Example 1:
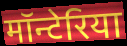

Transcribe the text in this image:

मॉन्टेरिया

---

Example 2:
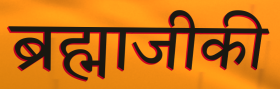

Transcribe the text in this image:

ब्रह्माजीकी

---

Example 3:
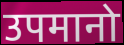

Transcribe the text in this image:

उपमानो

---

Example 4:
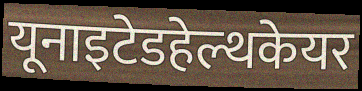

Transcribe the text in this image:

यूनाइटेडहेल्थकेयर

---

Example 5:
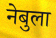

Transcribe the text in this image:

नेबुला